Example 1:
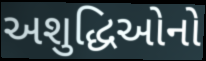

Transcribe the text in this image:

અશુદ્ધિઓનો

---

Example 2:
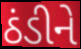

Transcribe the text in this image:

ઠંડીને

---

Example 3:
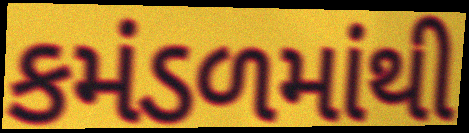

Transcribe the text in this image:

કમંડળમાંથી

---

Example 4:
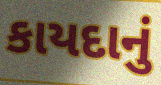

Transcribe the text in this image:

કાયદાનું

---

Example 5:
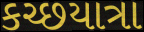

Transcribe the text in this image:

કચ્છયાત્રા